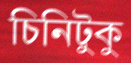
চিনিটুকু